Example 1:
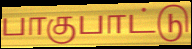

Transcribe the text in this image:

பாகுபாட்டு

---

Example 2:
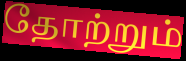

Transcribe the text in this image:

தோற்றும்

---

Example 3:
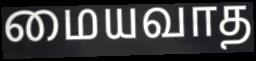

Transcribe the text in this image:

மையவாத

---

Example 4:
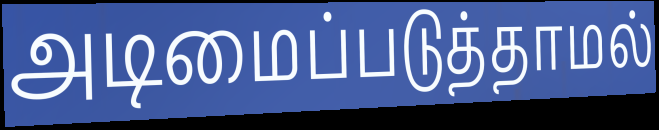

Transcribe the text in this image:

அடிமைப்படுத்தாமல்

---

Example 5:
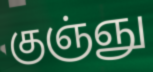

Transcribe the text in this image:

குஞ்ஞு